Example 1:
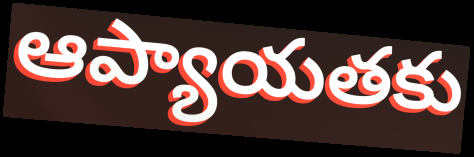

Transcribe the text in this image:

ఆప్యాయతకు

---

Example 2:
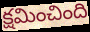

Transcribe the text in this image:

క్షమించింది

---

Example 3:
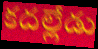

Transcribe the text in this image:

కదల్లేడు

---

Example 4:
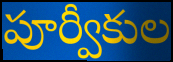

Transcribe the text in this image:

పూర్వీకుల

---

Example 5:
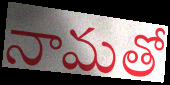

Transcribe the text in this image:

నామతో